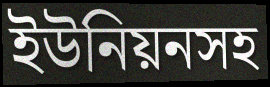
ইউনিয়নসহ